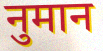
नुमान